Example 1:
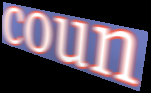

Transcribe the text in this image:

coun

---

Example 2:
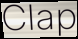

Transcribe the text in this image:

Clap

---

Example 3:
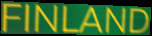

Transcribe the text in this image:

FINLAND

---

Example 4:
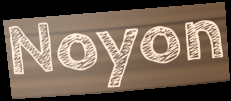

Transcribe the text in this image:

Noyon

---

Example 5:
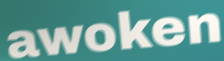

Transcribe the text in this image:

awoken